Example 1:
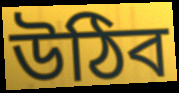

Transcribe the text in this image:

উঠিব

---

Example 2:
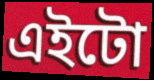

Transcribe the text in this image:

এইটো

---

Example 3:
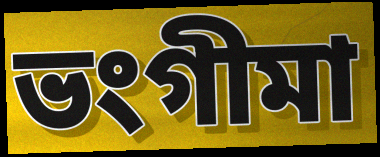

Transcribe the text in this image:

ভংগীমা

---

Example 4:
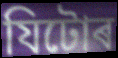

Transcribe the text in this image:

যিটোৰ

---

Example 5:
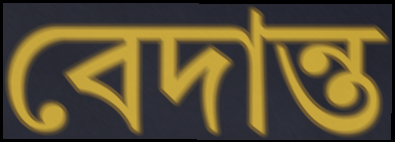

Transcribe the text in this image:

বেদান্ত